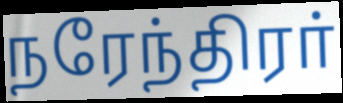
நரேந்திரர்